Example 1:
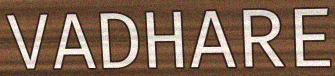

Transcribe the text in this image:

VADHARE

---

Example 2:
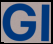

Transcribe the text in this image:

Gl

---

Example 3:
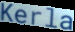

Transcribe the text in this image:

Kerla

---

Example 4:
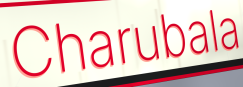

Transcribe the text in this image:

Charubala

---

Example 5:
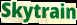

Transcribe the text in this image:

Skytrain